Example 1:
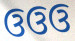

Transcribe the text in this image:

ઉઉઉ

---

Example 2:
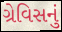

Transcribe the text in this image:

ગ્રેવિસનું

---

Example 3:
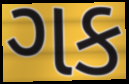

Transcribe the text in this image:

ગક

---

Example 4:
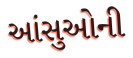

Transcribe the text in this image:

આંસુઓની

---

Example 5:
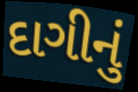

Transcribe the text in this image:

દાગીનું